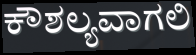
ಕೌಶಲ್ಯವಾಗಲಿ